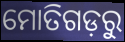
ମୋତିଗଡ଼ରୁ